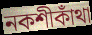
নকশীকাঁথা